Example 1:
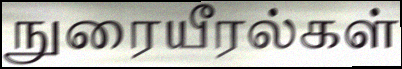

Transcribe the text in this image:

நுரையீரல்கள்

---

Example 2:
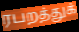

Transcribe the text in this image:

ரபறத்துக்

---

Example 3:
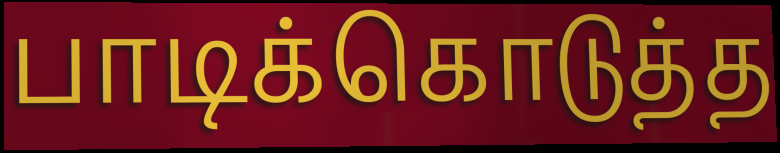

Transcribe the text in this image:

பாடிக்கொடுத்த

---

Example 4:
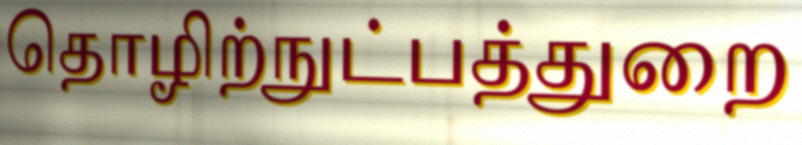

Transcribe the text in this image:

தொழிற்நுட்பத்துறை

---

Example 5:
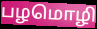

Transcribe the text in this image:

பழமொழி